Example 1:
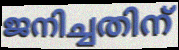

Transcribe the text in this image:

ജനിച്ചതിന്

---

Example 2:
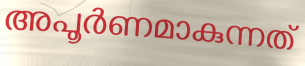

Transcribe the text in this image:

അപൂർണമാകുന്നത്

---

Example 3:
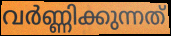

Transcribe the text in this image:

വർണ്ണിക്കുന്നത്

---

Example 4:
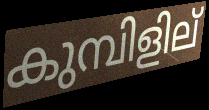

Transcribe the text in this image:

കുമ്പിളില്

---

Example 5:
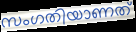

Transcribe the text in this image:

സംഗതിയാണത്